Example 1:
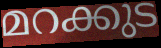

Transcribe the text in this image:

മറക്കുട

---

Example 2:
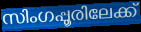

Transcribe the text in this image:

സിംഗപ്പൂരിലേക്ക്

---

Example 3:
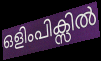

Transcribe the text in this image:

ഒളിംപിക്സിൽ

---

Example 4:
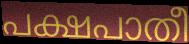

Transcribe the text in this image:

പക്ഷപാതീ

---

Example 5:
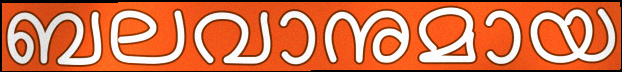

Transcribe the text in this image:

ബലവാനുമായ